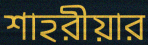
শাহরীয়ার